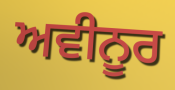
ਅਵੀਨੂਰ